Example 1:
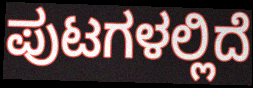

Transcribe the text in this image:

ಪುಟಗಳಲ್ಲಿದೆ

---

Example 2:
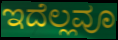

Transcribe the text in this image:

ಇದೆಲ್ಲವೂ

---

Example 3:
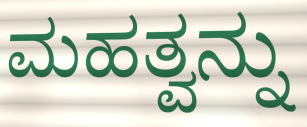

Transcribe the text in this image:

ಮಹತ್ವನ್ನು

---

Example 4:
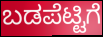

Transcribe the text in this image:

ಬಡಪೆಟ್ಟಿಗೆ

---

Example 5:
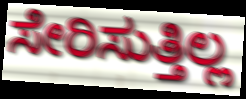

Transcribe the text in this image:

ಸೇರಿಸುತ್ತಿಲ್ಲ